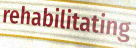
rehabilitating